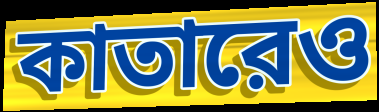
কাতারেও